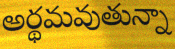
అర్థమవుతున్నా